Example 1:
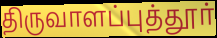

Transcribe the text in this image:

திருவாளப்புத்தூர்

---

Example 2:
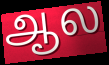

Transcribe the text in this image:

ஆல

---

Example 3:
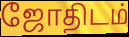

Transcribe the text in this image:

ஜோதிடம்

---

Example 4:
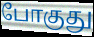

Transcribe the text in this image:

போகுது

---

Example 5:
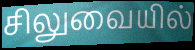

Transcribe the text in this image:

சிலுவையில்